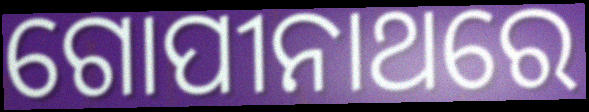
ଗୋପୀନାଥରେ